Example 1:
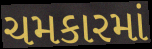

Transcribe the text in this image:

ચમકારમાં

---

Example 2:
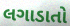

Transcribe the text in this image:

લગાડાતો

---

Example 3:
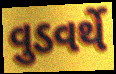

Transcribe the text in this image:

વુડવર્થે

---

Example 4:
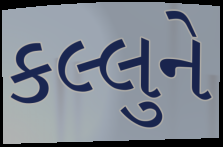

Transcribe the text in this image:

કલ્લુને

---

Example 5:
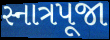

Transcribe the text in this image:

સ્નાત્રપૂજા